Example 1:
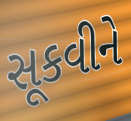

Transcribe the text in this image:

સૂકવીને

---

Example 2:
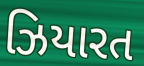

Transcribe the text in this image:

ઝિયારત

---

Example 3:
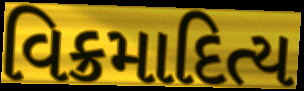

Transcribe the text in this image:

વિક્રમાદિત્‍ય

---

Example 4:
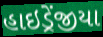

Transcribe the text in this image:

હાઇડ્રેંજીયા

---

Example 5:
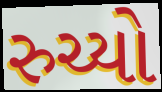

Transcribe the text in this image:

રુચ્યો